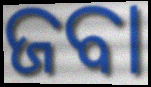
ଜବା